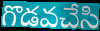
గొడవచేసి